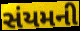
સંયમની